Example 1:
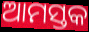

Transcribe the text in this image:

ଆମସ୍ତକ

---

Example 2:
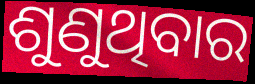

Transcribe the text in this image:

ଶୁଣୁଥିବାର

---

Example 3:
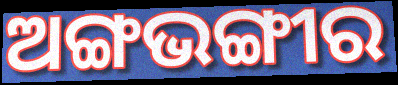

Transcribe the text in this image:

ଅଙ୍ଗଭଙ୍ଗୀର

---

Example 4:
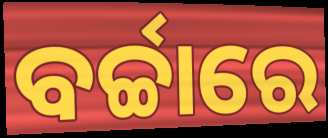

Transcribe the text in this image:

ବର୍ଚ୍ଚାରେ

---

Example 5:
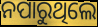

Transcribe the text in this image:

ନପାରୁଥିଲେ